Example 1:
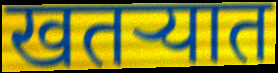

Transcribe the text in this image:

खतऱ्यात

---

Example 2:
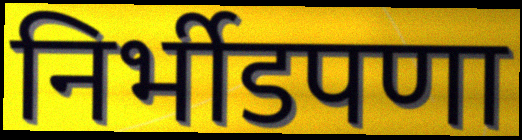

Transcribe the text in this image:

निर्भीडपणा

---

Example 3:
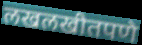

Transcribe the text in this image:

लखलखीतपणे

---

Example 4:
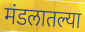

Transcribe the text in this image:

मंडलातल्या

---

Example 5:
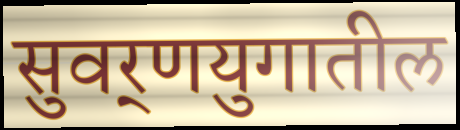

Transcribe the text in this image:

सुवर्णयुगातील